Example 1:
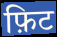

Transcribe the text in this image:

फ़िट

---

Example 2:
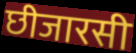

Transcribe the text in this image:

छीजारसी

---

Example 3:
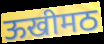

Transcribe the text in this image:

ऊखीमठ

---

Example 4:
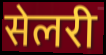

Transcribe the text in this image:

सेलरी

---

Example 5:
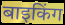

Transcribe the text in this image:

बाइकिंग